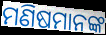
ମଣିଷମାନଙ୍କ